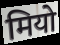
मियो